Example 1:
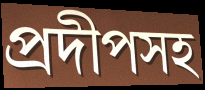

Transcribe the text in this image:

প্রদীপসহ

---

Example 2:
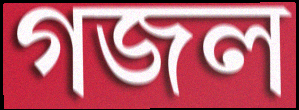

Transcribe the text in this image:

গজল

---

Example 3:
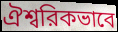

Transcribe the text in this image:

ঐশ্বরিকভাবে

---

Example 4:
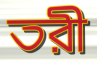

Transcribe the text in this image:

তরী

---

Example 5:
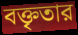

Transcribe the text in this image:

বক্তৃতার